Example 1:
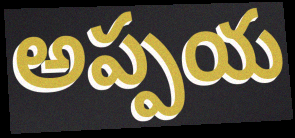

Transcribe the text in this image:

అప్పయ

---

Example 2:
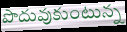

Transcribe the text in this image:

పొదువుకుంటున్న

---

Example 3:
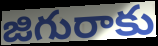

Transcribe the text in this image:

జిగురాకు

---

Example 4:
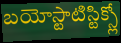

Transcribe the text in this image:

బయోస్టాటిస్టిక్స్లో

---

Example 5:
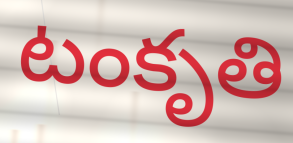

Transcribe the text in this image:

టంకృతి